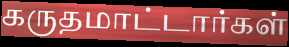
கருதமாட்டார்கள்